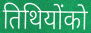
तिथियोंको